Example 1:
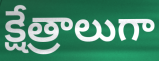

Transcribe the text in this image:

క్షేత్రాలుగా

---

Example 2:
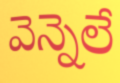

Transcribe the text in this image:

వెన్నెలే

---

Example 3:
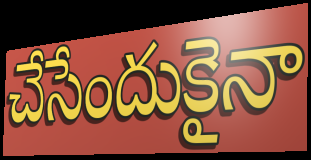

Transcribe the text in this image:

చేసేందుకైనా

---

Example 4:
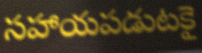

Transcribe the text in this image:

సహాయపడుటకై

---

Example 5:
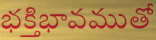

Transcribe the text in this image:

భక్తిభావముతో